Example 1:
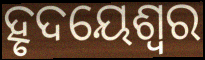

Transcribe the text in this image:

ହୃଦୟେଶ୍ୱର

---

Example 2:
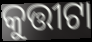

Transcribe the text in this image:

କୁତ୍ତୀଟା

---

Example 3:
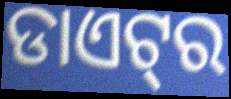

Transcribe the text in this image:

ଡାଏଟ୍‌ର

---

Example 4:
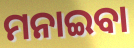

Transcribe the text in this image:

ମନାଇବା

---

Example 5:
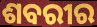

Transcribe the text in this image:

ଶବରୀର